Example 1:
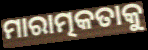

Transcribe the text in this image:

ମାରାତ୍ମକତାକୁ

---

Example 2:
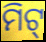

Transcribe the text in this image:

ମିଟ୍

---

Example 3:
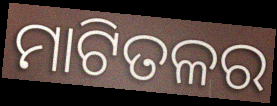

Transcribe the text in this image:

ମାଟିତଳର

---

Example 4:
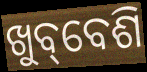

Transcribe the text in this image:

ଖୁବ୍‌ବେଶି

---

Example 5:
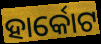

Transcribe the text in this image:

ହାର୍କୋଟ